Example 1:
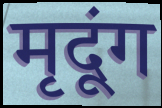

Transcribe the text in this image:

मृदूंग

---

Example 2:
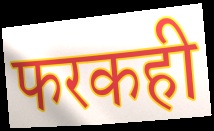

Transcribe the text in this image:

फरकही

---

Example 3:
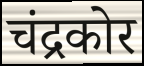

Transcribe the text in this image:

चंद्रकोर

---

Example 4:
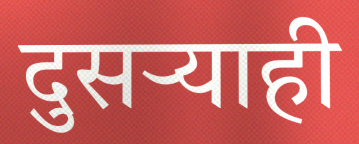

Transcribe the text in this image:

दुसऱ्याही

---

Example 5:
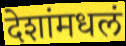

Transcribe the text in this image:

देशांमधलं